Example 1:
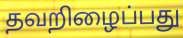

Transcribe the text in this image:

தவறிழைப்பது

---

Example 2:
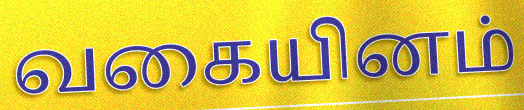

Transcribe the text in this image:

வகையினம்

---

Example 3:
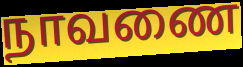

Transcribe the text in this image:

நாவணை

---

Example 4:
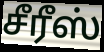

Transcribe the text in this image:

சீரீஸ்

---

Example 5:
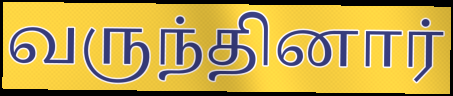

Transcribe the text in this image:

வருந்தினார்